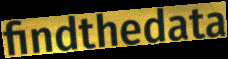
findthedata